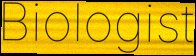
Biologist